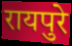
रायपुरे